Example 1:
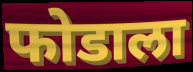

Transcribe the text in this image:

फोडाला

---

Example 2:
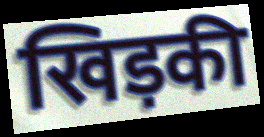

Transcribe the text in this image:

खिड़की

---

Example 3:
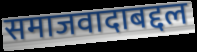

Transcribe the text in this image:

समाजवादाबद्दल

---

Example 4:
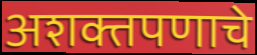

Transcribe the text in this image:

अशक्तपणाचे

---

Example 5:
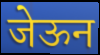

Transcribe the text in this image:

जेऊन